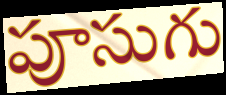
పూసుగు